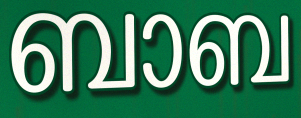
ബാബ